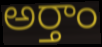
అర్తాం